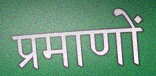
प्रमाणों